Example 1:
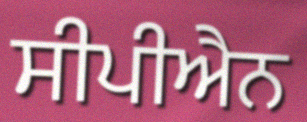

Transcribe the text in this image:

ਸੀਪੀਐਨ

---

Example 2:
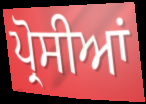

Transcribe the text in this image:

ਪ੍ਰੋਸੀਆਂ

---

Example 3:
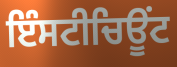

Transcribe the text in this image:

ਇੰਸਟੀਚਿਊਂਟ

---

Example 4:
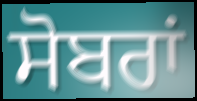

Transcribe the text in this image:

ਸੋਬਰਾਂ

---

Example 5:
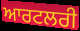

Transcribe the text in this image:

ਆਰਟਲਰੀ